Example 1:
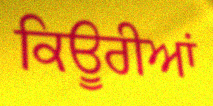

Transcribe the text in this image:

ਕਿਊਰੀਆਂ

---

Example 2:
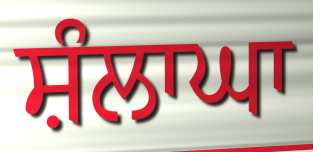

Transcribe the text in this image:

ਸ਼ੰਲਾਘਾ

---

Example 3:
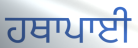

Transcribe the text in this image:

ਹਥਾਪਾਈ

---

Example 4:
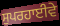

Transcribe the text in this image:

ਸੁਪਰਹਾਈਵੇ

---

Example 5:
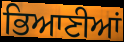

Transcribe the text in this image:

ਭਿਆਣੀਆਂ